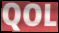
QOL